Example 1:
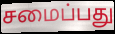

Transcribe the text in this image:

சமைப்பது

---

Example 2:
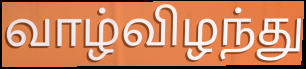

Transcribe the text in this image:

வாழ்விழந்து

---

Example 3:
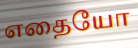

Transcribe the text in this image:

எதையோ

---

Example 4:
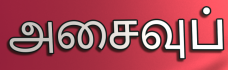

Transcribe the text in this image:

அசைவுப்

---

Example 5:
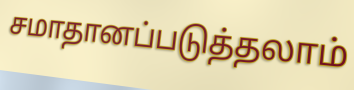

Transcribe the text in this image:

சமாதானப்படுத்தலாம்